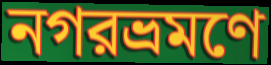
নগরভ্রমণে